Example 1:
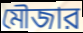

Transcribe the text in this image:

মৌজার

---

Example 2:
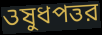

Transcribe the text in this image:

ওষুধপত্তর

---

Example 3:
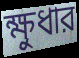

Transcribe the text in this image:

ক্ষুধার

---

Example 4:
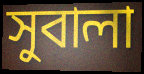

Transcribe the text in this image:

সুবালা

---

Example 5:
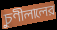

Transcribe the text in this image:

চুণীলালের